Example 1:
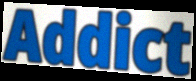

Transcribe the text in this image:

Addict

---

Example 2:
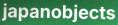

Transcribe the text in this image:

japanobjects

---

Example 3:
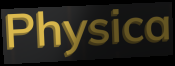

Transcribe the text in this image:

Physica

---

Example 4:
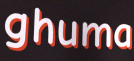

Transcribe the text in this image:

ghuma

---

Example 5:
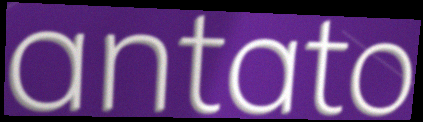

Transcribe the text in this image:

antato